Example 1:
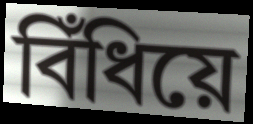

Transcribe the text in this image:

বিঁধিয়ে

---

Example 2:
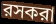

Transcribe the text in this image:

রসকরা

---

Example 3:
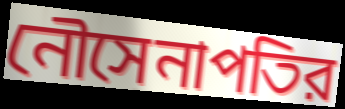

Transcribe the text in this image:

নৌসেনাপতির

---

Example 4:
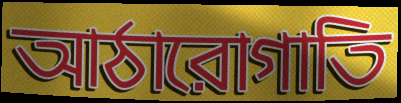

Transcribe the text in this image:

আঠারোগাতি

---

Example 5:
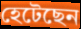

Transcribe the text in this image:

হেটেছেন